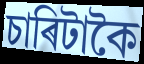
চাৰিটাকৈ